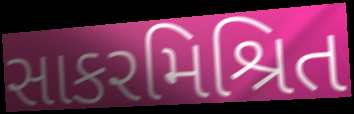
સાકરમિશ્રિત